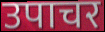
उपाचर